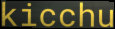
kicchu